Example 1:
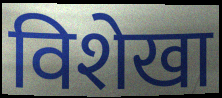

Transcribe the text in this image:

विशेखा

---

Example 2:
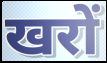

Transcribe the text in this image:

खरों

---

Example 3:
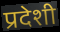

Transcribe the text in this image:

प्रदेशी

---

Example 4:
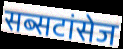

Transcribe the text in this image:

सब्सटांसेज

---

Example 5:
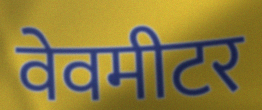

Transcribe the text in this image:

वेवमीटर